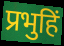
प्रभुहिं